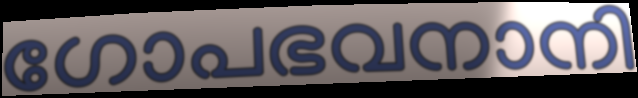
ഗോപഭവനാനി